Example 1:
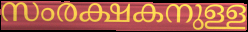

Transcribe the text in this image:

സംരക്ഷകനുള്ള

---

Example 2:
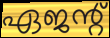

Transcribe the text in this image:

ഏജന്റ്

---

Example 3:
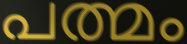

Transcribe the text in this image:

പത്മം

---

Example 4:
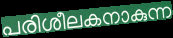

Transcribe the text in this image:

പരിശീലകനാകുന്ന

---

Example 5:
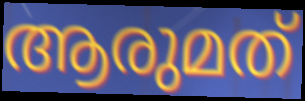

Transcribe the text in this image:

ആരുമത്